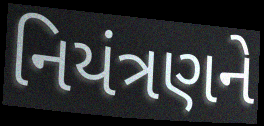
નિયંત્રણને